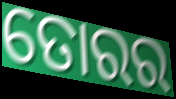
ତୋରର